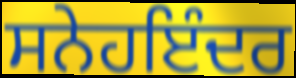
ਸਨੇਹਇੰਦਰ